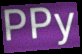
PPy